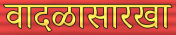
वादळासारखा